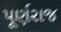
પૂર્ણરાજ